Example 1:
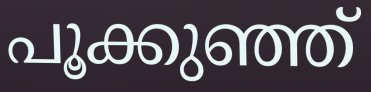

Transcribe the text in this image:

പൂക്കുഞ്ഞ്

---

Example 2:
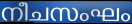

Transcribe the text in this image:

നീചസംഘം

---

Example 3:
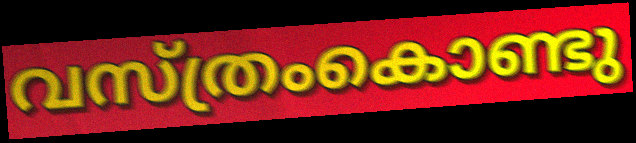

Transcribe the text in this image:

വസ്ത്രംകൊണ്ടു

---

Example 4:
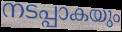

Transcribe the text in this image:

നടപ്പാകയും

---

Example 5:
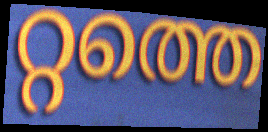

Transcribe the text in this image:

റ്റത്തെ